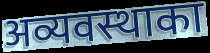
अव्यवस्थाका